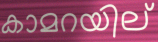
കാമറയില്